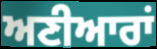
ਅਣੀਆਰਾਂ